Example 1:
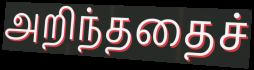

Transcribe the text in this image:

அறிந்ததைச்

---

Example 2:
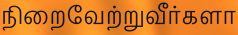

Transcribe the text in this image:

நிறைவேற்றுவீர்களா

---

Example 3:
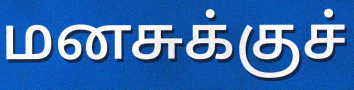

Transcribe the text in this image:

மனசுக்குச்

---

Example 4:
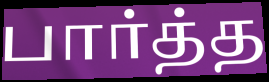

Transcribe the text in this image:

பார்த்த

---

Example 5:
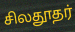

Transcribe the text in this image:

சிலதூதர்